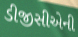
ડીજીસીએની